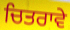
ਚਿਤਰਾਵੇ